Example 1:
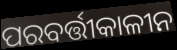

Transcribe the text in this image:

ପରବର୍ତ୍ତୀକାଳୀନ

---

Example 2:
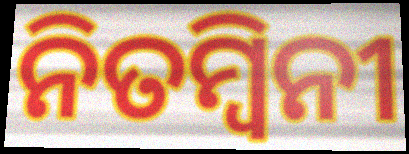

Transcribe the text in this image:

ନିତମ୍ବିନୀ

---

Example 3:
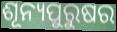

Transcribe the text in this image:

ଶୂନ୍ୟପୁରୁଷର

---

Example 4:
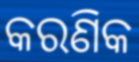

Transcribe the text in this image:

କରଣିକ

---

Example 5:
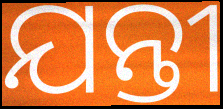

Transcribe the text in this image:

ଯନ୍ତୀ